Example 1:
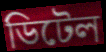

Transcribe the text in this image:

ডিটেল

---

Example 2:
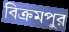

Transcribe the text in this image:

বিক্রমপুর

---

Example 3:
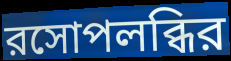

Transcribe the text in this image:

রসোপলব্ধির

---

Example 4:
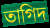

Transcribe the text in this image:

তাগিদ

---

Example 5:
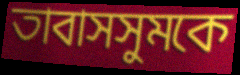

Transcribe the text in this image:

তাবাসসুমকে